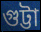
গুট্টা